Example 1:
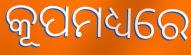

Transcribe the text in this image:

କୂପମଧ୍ୟରେ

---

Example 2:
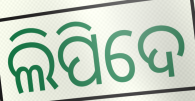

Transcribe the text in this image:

ଲିପିଦେ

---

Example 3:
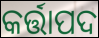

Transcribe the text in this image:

କର୍ତ୍ତାପଦ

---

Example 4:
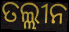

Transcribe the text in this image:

ତଲ୍ଲୀନ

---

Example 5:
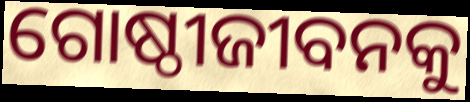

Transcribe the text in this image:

ଗୋଷ୍ଠୀଜୀବନକୁ